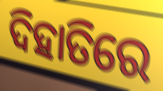
ଦିହାତିରେ